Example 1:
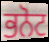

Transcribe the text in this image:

ਭਨੋਟ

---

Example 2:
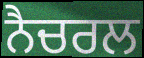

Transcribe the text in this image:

ਨੈਚਰਲ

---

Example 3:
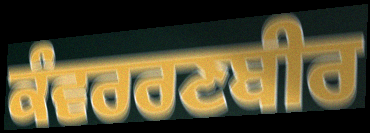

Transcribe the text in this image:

ਕੰਵਰਰਣਬੀਰ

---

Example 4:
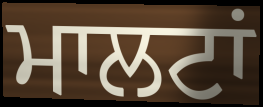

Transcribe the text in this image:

ਮਾਲਟਾਂ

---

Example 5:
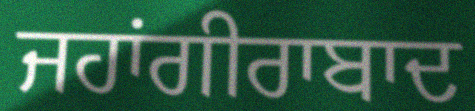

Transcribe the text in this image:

ਜਹਾਂਗੀਰਾਬਾਦ